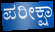
ಪರೀಕ್ಷಾ